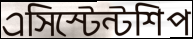
এসিস্টেন্টশিপ